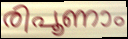
രിപൂണാം